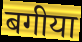
बगीया